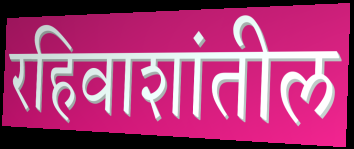
रहिवाशांतील